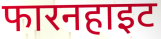
फारनहाइट